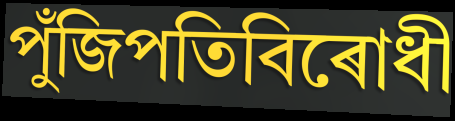
পুঁজিপতিবিৰোধী